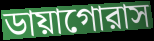
ডায়াগোরাস